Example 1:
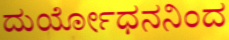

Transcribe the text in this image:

ದುರ್ಯೋಧನನಿಂದ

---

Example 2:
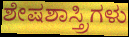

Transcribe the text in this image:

ಶೇಷಶಾಸ್ತ್ರಿಗಳು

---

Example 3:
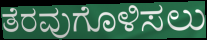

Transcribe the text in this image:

ತೆರವುಗೊಳಿಸಲು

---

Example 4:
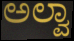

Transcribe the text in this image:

ಅಲ್ವಾ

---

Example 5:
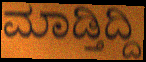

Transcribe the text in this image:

ಮಾಡ್ತಿದ್ದಿ